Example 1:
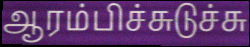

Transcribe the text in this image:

ஆரம்பிச்சுடுச்சு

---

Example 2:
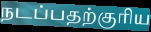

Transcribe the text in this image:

நடப்பதற்குரிய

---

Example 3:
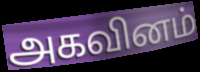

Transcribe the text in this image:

அகவினம்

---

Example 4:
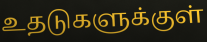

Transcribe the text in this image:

உதடுகளுக்குள்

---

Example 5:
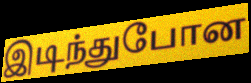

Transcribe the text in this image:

இடிந்துபோன